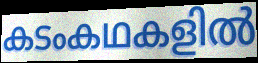
കടംകഥകളിൽ